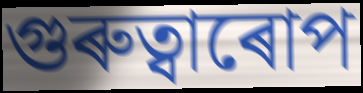
গুৰুত্বাৰোপ